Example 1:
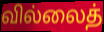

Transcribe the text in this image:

வில்லைத்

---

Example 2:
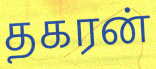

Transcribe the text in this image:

தகரன்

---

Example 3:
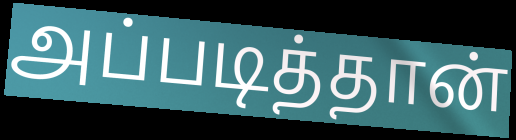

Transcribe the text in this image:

அப்படித்தான்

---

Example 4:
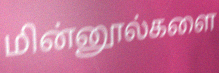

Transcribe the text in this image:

மின்னூல்களை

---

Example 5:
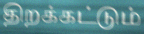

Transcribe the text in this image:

திறக்கட்டும்